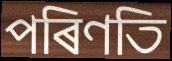
পৰিণতি